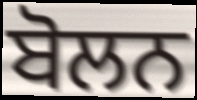
ਬੋਲਨ